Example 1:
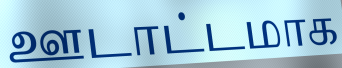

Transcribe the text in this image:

ஊடாட்டமாக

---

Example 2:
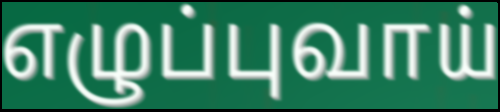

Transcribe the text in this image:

எழுப்புவாய்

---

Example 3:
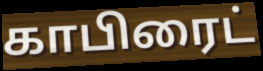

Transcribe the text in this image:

காபிரைட்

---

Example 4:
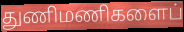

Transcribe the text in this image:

துணிமணிகளைப்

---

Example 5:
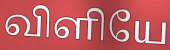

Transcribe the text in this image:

விளியே